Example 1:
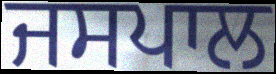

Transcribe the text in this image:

ਜਸਪਾਲ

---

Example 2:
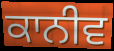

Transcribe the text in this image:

ਕਾਨੀਵ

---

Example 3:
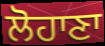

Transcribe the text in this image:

ਲੋਹਾਣਾ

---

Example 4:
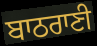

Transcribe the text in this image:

ਬਾਠਰਾਣੀ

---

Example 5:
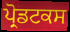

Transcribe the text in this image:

ਪ੍ਰੋਡਟਕਸ